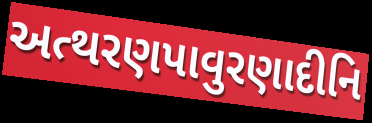
અત્થરણપાવુરણાદીનિ